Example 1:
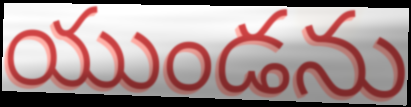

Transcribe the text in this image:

యుండను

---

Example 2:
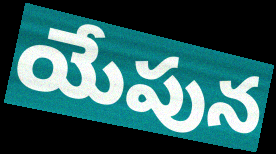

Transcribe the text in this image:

యేపున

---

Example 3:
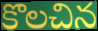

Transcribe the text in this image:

కొలచిన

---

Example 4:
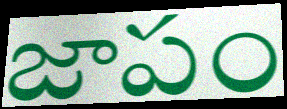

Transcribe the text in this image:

జాపం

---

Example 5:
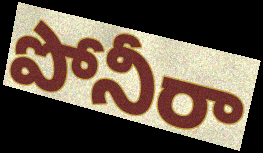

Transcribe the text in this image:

పోనీరా